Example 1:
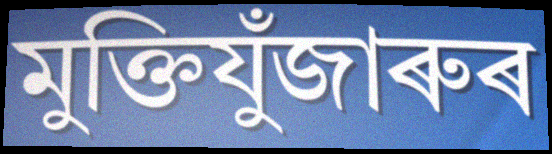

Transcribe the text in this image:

মুক্তিযুঁজাৰুৰ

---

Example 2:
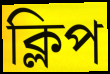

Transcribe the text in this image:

ক্লিপ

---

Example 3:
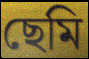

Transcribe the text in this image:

ছেমি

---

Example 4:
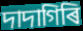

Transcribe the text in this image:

দাদাগিৰি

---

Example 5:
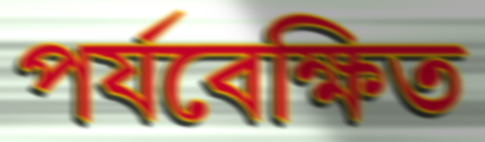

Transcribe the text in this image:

পৰ্যবেক্ষিত